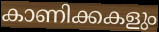
കാണിക്കകളും